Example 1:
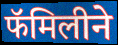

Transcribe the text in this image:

फॅमिलीने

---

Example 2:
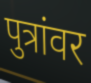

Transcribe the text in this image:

पुत्रांवर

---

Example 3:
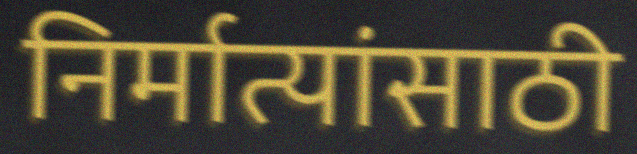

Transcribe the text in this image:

निर्मात्यांसाठी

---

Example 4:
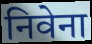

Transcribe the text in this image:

निवेना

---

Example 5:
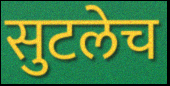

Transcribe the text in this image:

सुटलेच